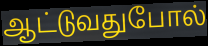
ஆட்டுவதுபோல்